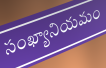
సంఖ్యానియమం